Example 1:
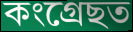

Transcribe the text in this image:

কংগ্ৰেছত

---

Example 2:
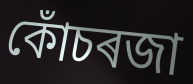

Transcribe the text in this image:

কোঁচৰজা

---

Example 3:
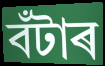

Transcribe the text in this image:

বঁটাৰ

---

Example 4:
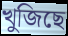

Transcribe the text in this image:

খুজিছে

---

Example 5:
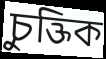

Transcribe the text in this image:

চুক্তিক